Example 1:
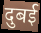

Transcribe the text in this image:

दुबई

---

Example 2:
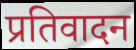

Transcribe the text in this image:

प्रतिवादन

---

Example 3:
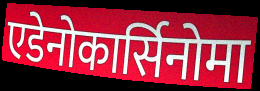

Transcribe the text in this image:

एडेनोकार्सिनोमा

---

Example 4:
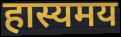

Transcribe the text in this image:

हास्यमय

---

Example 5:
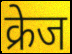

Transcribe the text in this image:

क्रेज